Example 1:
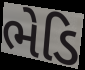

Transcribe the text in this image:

ભેડિ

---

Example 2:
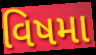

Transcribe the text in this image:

વિષમા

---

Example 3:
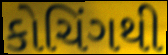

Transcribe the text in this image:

કોચિંગથી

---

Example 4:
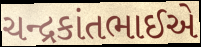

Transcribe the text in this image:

ચન્દ્રકાંતભાઈએ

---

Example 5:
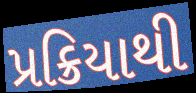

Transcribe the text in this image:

પ્રક્રિયાથી